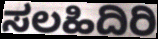
ಸಲಹಿದಿರಿ